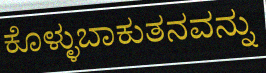
ಕೊಳ್ಳುಬಾಕುತನವನ್ನು